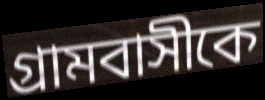
গ্রামবাসীকে